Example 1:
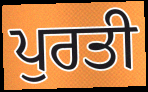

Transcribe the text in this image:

ਪੁਰਤੀ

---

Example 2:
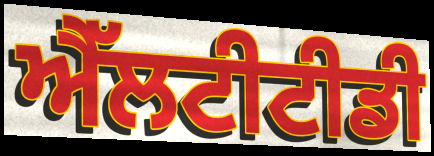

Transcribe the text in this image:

ਐੱਲਟੀਟੀਡੀ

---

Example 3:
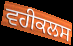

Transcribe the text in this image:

ਵਹੀਕਲਸ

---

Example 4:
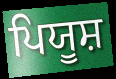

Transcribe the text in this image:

ਪਿਯੂਸ਼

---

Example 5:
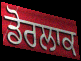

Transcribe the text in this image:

ਡੋਰਲਾਕ